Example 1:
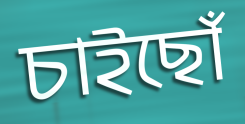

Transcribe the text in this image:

চাইছোঁ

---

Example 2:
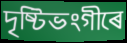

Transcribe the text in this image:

দৃষ্টিভংগীৰে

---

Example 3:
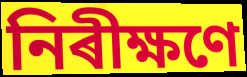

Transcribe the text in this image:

নিৰীক্ষণে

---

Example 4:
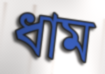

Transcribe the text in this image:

ধাম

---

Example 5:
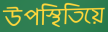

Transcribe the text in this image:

উপস্থিতিয়ে